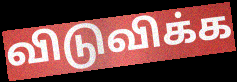
விடுவிக்க